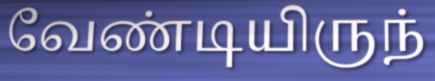
வேண்டியிருந்